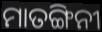
ମାତଙ୍ଗିନୀ